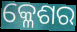
କ୍ଳେଶର